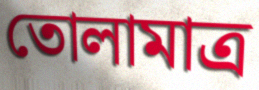
তোলামাত্র